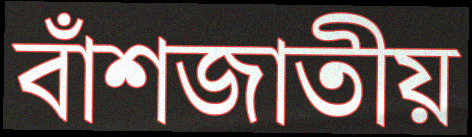
বাঁশজাতীয়